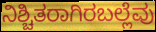
ನಿಶ್ಚಿತರಾಗಿರಬಲ್ಲೆವು